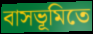
বাসভূমিতে